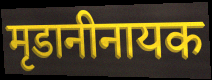
मृडानीनायक